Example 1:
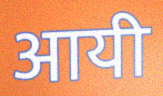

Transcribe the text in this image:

आयी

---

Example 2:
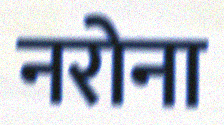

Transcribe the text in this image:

नरोना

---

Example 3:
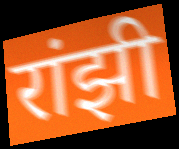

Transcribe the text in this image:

रांझी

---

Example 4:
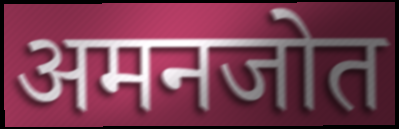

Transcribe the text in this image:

अमनजोत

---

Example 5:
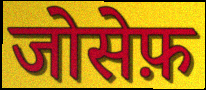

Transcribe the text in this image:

जोसेफ़